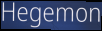
Hegemon